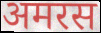
अमरस